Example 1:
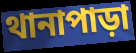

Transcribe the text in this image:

থানাপাড়া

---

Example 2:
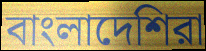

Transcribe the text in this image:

বাংলাদেশিরা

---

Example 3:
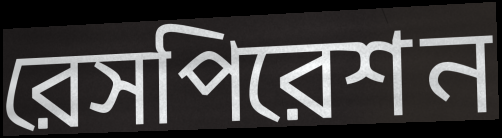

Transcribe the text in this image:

রেসপিরেশন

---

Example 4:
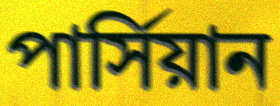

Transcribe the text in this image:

পার্সিয়ান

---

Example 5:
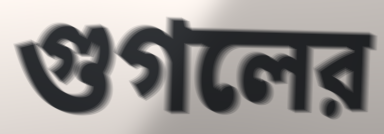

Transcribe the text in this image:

গুগলের